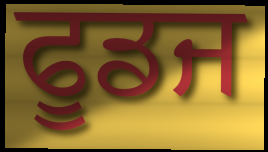
ਫੂਡਜ